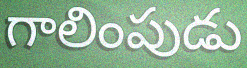
గాలింపుడు